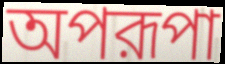
অপরূপা